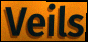
Veils